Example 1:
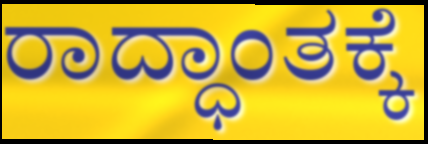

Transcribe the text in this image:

ರಾದ್ಧಾಂತಕ್ಕೆ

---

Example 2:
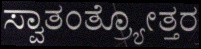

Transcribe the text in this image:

ಸ್ವಾತಂತ್ರ್ಯೋತ್ತರ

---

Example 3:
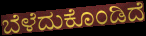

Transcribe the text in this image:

ಬೆಳೆದುಕೊಂಡಿದೆ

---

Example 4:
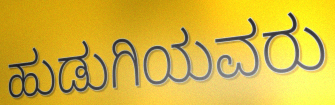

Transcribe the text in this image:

ಹುಡುಗಿಯವರು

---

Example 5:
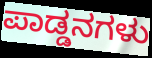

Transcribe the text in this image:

ಪಾಡ್ಡನಗಳು